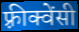
फ़्रीक्वेंसी